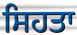
ਸਿਹਤਾ